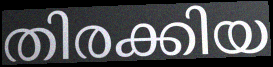
തിരക്കിയ